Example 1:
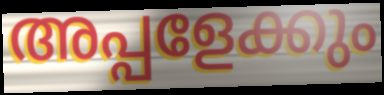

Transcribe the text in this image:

അപ്പളേക്കും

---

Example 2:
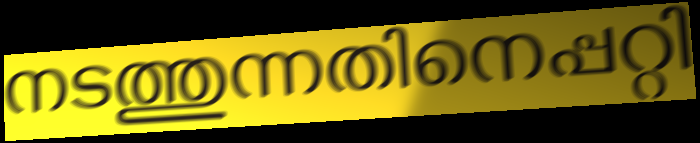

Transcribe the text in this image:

നടത്തുന്നതിനെപ്പറ്റി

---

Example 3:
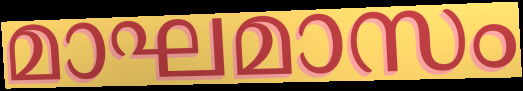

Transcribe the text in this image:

മാഘമാസം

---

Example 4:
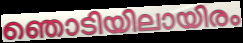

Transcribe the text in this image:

ഞൊടിയിലായിരം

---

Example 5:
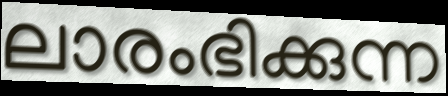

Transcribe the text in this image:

ലാരംഭിക്കുന്ന